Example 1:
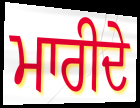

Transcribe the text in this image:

ਮਾਰੀਦੇ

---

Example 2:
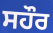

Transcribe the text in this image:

ਸਹੌਰ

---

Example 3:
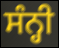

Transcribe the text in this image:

ਸੰਨ੍ਹ੍ਹੀ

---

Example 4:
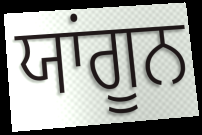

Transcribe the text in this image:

ਯਾਂਗੂਨ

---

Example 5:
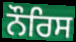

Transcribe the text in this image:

ਨੌਰਿਸ